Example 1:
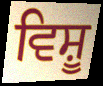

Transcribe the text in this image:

ਵਿਸ਼ੂ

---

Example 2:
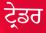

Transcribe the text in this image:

ਟ੍ਰੇਡਰ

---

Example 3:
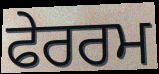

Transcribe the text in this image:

ਫੇਰਰਮ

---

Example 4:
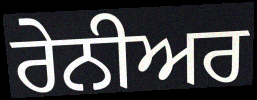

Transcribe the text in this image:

ਰੇਨੀਅਰ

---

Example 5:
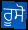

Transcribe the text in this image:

ਰੂਸੋ